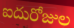
ఐదురోజుల